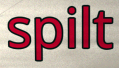
spilt